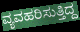
ವ್ಯವಹರಿಸುತ್ತಿದ್ದ